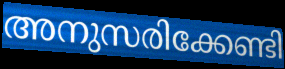
അനുസരിക്കേണ്ടി